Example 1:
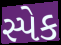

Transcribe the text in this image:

સ્પેક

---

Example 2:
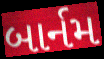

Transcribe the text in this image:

બાર્નમ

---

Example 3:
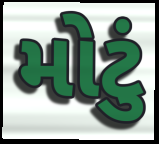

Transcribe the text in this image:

મોટું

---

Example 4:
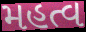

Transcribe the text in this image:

મહત્વ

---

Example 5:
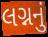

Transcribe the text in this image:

લગ્નનું